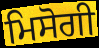
ਮਿਸੋਗੀ